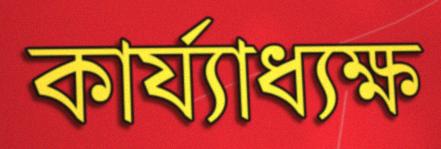
কার্য্যাধ্যক্ষ